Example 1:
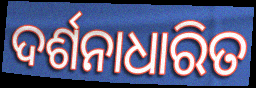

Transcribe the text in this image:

ଦର୍ଶନାଧାରିତ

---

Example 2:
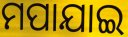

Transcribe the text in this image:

ମପାଯାଇ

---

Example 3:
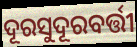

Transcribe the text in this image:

ଦୂରସୁଦୂରବର୍ତ୍ତୀ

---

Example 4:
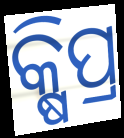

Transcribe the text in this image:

କ୍ଷିପ୍ର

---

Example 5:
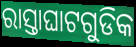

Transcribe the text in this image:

ରାସ୍ତାଘାଟଗୁଡିକ